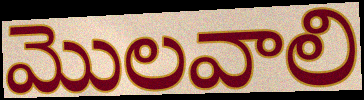
మొలవాలి